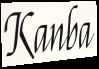
Kanba